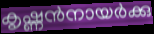
കൃഷ്ണൻനായർക്കു